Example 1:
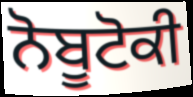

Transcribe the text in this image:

ਨੋਬੂਟੋਕੀ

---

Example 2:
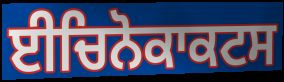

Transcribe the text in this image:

ਈਚਿਨੋਕਾਕਟਸ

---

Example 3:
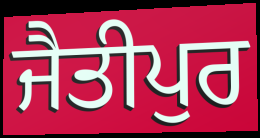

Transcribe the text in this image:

ਜੈਤੀਪੁਰ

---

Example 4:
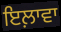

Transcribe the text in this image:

ਇਲ਼ਾਵਾ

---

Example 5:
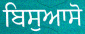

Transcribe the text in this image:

ਬਿਸੁਆਸੋ